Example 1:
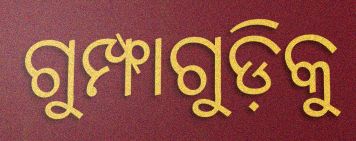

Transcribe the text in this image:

ଗୁମ୍ଫାଗୁଡ଼ିକୁ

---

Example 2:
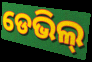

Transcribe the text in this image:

ଡେଭିଲ୍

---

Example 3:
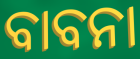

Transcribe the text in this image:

ବାବନା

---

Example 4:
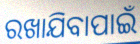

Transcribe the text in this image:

ରଖାଯିବାପାଇଁ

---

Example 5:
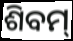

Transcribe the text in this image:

ଶିବମ୍